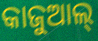
କାଜୁଆଲ୍